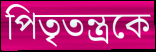
পিতৃতন্ত্রকে